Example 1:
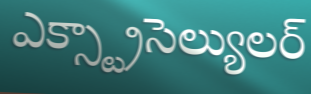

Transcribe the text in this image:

ఎక్స్ట్రాసెల్యులర్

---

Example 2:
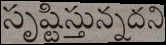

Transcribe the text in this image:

సృష్టిస్తున్నదని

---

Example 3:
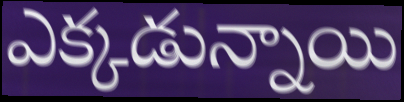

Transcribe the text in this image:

ఎక్కడున్నాయి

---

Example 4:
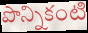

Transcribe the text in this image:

పొన్నికంటి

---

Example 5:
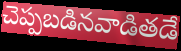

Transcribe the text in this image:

చెప్పబడినవాడితడే